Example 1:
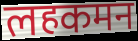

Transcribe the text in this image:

लहकमन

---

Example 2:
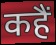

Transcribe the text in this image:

कहैं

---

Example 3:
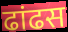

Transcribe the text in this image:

ढांढस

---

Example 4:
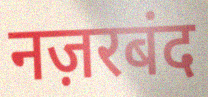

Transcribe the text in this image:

नज़रबंद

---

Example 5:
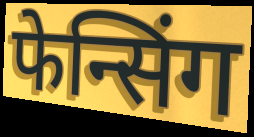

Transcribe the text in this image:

फेन्सिंग